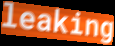
leaking